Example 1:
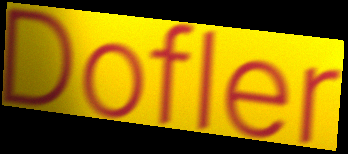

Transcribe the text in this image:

Dofler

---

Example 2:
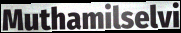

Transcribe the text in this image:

Muthamilselvi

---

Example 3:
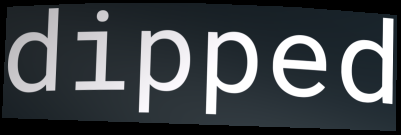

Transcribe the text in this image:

dipped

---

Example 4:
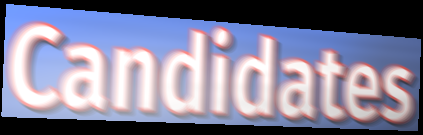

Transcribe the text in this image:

Candidates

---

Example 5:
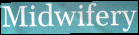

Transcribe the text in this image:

Midwifery